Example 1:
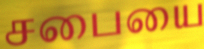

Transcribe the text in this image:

சபையை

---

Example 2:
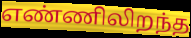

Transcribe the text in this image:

எண்ணிலிறந்த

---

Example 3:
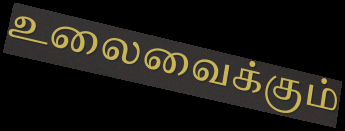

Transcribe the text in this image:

உலைவைக்கும்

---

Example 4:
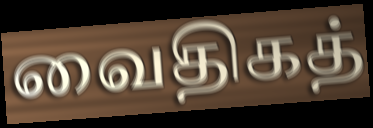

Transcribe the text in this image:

வைதிகத்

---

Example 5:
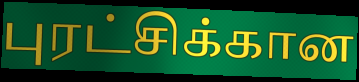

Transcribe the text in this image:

புரட்சிக்கான